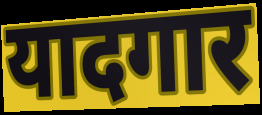
यादगार